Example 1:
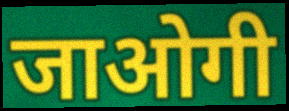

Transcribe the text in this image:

जाओगी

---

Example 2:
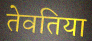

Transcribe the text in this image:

तेवतिया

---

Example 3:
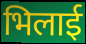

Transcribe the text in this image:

भिलाई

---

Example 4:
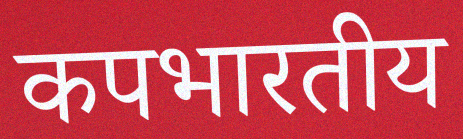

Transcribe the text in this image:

कपभारतीय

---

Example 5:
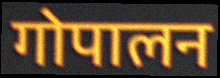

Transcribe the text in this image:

गोपालन